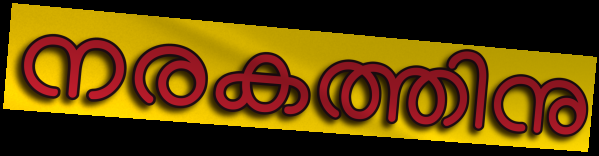
നരകത്തിനു